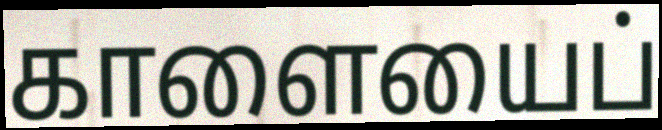
காளையைப்